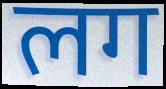
लग